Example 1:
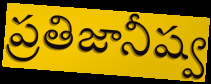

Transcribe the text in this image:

ప్రతిజానీష్వ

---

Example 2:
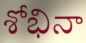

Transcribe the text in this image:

శోభినా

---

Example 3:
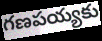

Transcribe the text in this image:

గణపయ్యకు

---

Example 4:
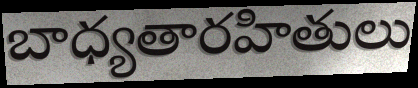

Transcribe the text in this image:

బాధ్యతారహితులు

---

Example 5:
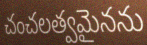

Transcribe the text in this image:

చంచలత్వమైనను